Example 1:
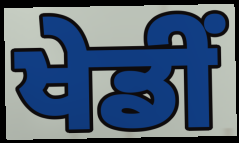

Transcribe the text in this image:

ਖੇਡੀਂ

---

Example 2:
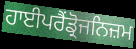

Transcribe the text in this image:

ਹਾਈਪਰੈਂਡ੍ਰੋਜਨਿਜ਼ਮ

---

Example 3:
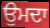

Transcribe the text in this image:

ਉਮਦਾ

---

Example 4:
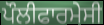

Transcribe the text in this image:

ਪੌਲੀਫਾਰਮੇਸੀ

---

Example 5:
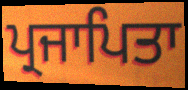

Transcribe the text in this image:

ਪ੍ਰਜਾਪਿਤਾ